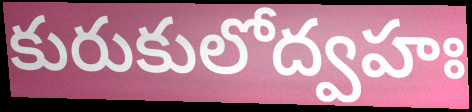
కురుకులోద్వహః